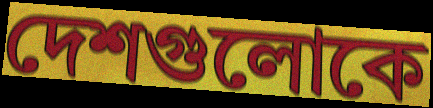
দেশগুলোকে